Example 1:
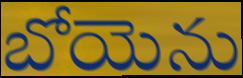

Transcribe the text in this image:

బోయెను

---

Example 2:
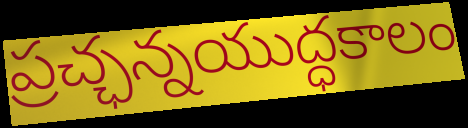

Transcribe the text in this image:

ప్రచ్ఛన్నయుద్ధకాలం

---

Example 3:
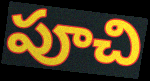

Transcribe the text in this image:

పూచి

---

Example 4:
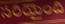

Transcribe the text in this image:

సరియైంది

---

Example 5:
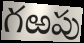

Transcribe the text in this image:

గఱపు